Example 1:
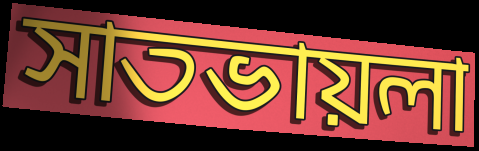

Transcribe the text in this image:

সাতভায়লা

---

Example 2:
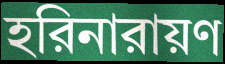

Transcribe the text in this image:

হরিনারায়ণ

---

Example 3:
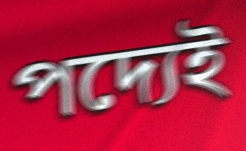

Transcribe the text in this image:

পদ্যেই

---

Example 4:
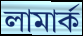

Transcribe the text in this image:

লামার্ক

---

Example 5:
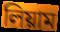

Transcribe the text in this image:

লিয়াম